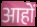
आहों